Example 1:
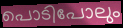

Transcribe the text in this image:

പൊടിപോലും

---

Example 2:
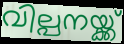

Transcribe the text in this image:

വില്പനയ്ക്ക്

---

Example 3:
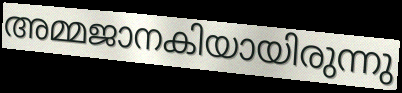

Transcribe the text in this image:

അമ്മജാനകിയായിരുന്നു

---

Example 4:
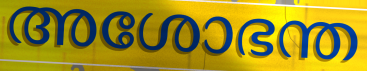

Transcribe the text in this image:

അശോഭന്ത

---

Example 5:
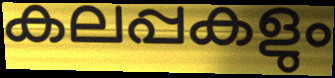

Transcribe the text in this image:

കലപ്പകളും